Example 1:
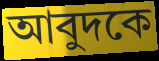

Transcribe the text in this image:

আবুদকে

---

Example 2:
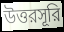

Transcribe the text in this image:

উত্তরসূরি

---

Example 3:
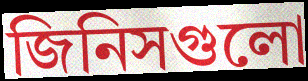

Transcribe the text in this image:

জিনিসগুলো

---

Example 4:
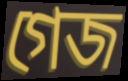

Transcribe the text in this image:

গেজ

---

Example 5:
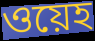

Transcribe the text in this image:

ওয়েহ